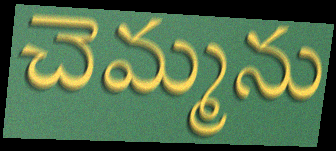
చెమ్మను